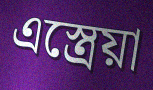
এস্ত্রেয়া